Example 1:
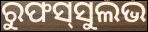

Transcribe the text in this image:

ରୁଫସ୍‌ସୁଲଭ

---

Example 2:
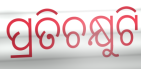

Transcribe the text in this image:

ପ୍ରତିଚକ୍ଷୁଟି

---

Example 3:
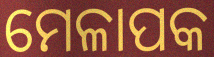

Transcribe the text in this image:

ମେଳାପକ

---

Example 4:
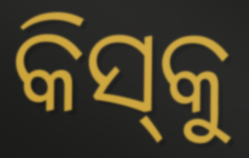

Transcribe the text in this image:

କିସ୍‌କୁ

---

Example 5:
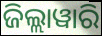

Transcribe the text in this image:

ଜିଲ୍ଲାୱାରି